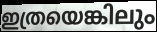
ഇത്രയെങ്കിലും